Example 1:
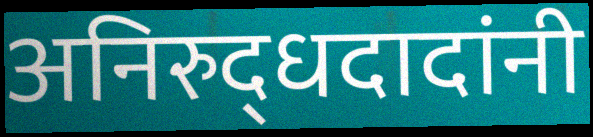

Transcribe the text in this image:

अनिरुद्धदादांनी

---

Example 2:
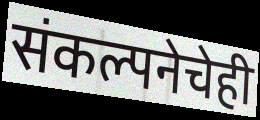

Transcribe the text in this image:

संकल्पनेचेही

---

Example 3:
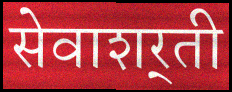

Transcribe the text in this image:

सेवाशर्ती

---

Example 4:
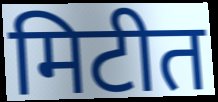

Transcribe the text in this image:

मिटीत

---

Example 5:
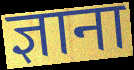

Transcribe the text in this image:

ज्ञाना